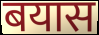
बयास